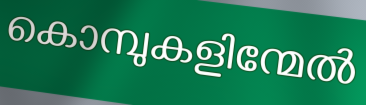
കൊമ്പുകളിന്മേൽ